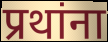
प्रथांना